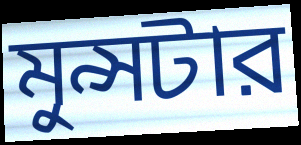
মুন্সটার